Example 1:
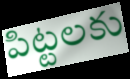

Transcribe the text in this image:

పిట్టలకు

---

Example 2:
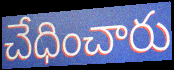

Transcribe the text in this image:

చేధించారు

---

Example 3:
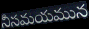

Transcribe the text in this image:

నీసమయమున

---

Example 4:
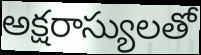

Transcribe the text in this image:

అక్షరాస్యులతో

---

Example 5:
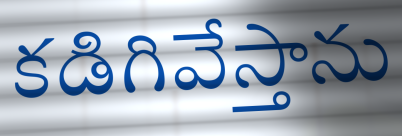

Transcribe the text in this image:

కడిగివేస్తాను